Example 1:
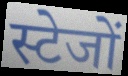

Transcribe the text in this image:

स्टेजों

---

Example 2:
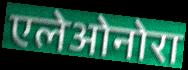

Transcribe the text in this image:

एलेओनोरा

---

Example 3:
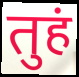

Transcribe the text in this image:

तुहं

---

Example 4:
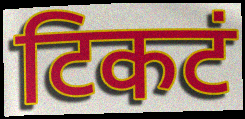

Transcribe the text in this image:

टिकटं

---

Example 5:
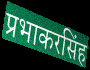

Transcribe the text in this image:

प्रभाकरसिंह